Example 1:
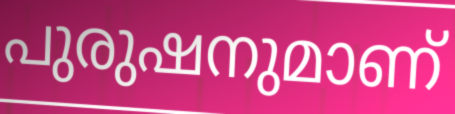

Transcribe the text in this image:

പുരുഷനുമാണ്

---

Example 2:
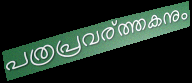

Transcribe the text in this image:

പത്രപ്രവര്ത്തകനും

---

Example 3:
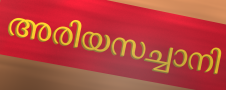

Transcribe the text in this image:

അരിയസച്ചാനി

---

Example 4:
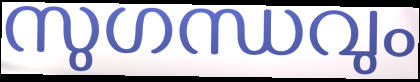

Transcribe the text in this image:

സുഗന്ധവും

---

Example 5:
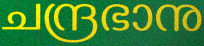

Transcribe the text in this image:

ചന്ദ്രഭാനു